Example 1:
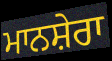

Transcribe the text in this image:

ਮਾਨਸ਼ੇਰਾ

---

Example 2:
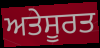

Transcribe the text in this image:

ਅਤੇਸੂਰਤ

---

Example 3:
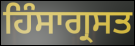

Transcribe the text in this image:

ਹਿੰਸਾਗ੍ਰਸਤ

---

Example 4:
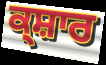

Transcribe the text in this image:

ਕ੍ਸ਼ਾਰ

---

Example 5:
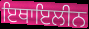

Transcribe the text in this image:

ਇਥਾਇਲੀਨ